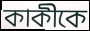
কাকীকে